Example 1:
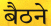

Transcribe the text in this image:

बैठने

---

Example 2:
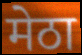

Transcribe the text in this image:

मेठा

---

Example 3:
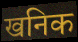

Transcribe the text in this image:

खनिक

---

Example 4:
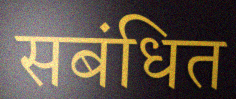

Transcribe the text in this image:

सबंधित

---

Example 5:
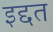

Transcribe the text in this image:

इद्दत